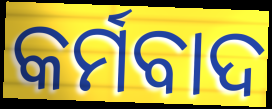
କର୍ମବାଦ